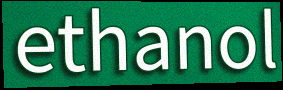
ethanol